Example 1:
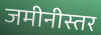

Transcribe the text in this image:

जमीनीस्तर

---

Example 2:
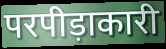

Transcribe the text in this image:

परपीड़ाकारी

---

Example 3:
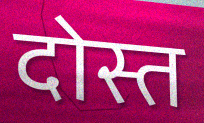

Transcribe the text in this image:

दोस्‍त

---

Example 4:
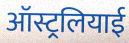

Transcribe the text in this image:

ऑस्ट्रलियाई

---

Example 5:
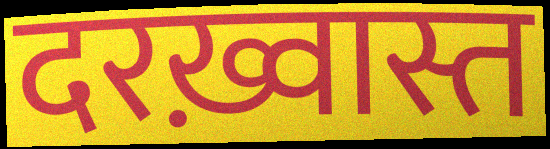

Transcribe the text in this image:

दरख़्वास्त